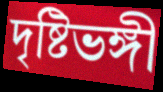
দৃষ্টিভঙ্গী